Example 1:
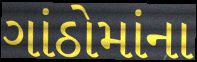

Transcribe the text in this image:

ગાંઠોમાંના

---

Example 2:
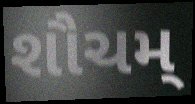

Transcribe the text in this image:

શૌચમ્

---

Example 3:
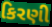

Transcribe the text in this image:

કિરણી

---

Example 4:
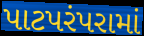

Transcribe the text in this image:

પાટપરંપરામાં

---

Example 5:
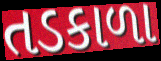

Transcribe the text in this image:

તડકાળા